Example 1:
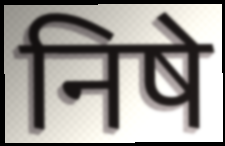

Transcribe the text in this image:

निषे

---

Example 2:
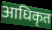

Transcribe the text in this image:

आधिकृत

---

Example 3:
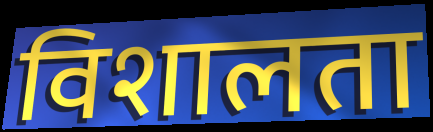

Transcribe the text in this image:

विशालता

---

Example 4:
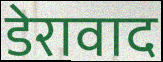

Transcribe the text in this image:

डेरावाद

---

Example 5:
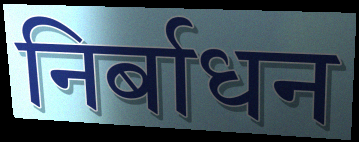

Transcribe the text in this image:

निर्बाधन